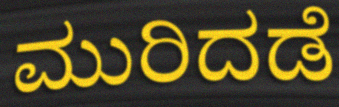
ಮುರಿದಡೆ